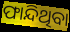
ଫାନ୍ଦିଥିବା